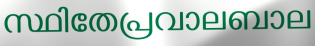
സ്ഥിതേപ്രവാലബാല